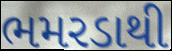
ભમરડાથી